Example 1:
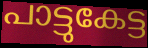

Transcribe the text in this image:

പാട്ടുകേട്ട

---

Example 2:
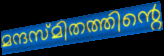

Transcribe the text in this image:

മന്ദസ്മിതത്തിന്റെ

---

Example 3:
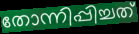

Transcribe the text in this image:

തോന്നിപ്പിച്ചത്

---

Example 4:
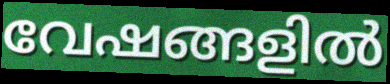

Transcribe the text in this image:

വേഷങ്ങളിൽ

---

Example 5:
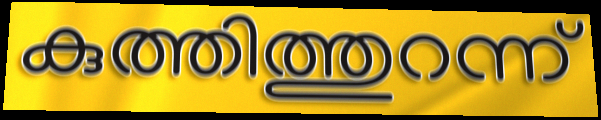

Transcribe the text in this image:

കുത്തിത്തുറന്ന്